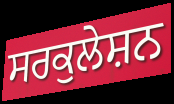
ਸਰਕੁਲੇਸ਼ਨ